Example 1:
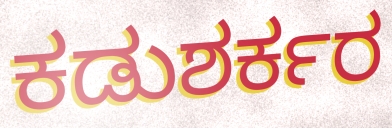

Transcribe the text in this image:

ಕಡುಶರ್ಕರ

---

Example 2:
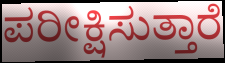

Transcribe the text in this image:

ಪರೀಕ್ಷಿಸುತ್ತಾರೆ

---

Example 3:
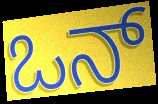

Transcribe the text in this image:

ಒನ್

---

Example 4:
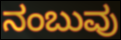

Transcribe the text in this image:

ನಂಬುವು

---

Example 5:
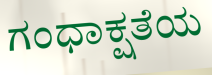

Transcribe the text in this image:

ಗಂಧಾಕ್ಷತೆಯ